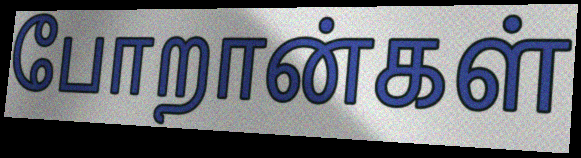
போறான்கள்